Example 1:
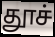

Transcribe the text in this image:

தூச்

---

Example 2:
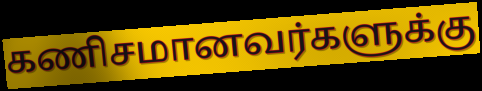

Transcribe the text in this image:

கணிசமானவர்களுக்கு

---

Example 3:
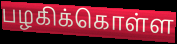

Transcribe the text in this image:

பழகிக்கொள்ள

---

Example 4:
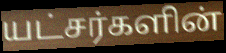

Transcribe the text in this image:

யட்சர்களின்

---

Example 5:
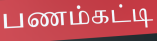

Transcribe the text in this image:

பணம்கட்டி